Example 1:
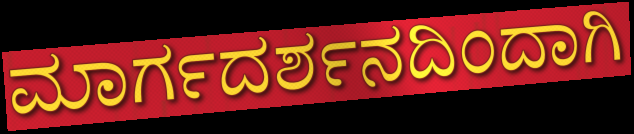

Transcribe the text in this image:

ಮಾರ್ಗದರ್ಶನದಿಂದಾಗಿ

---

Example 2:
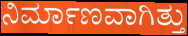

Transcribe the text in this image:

ನಿರ್ಮಾಣವಾಗಿತ್ತು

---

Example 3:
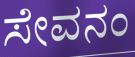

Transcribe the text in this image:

ಸೇವನಂ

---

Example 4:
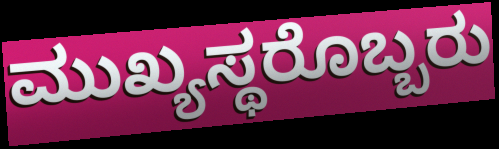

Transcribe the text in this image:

ಮುಖ್ಯಸ್ಥರೊಬ್ಬರು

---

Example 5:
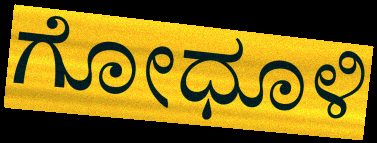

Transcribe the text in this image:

ಗೋಧೂಳಿ